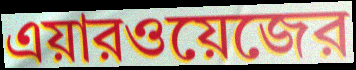
এয়ারওয়েজের